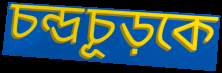
চন্দ্রচূড়কে